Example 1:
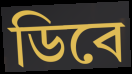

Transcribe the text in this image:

ডিবে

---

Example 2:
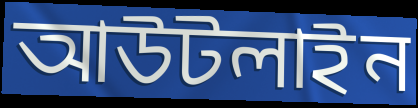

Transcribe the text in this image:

আউটলাইন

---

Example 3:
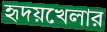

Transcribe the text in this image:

হৃদয়খেলার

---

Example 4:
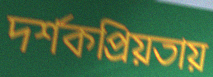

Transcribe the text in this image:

দর্শকপ্রিয়তায়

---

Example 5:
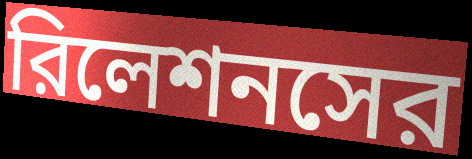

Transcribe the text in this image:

রিলেশনসের